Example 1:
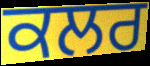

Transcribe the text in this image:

ਕਲਰ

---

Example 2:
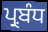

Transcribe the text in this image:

ਪ਼੍ਰਬੰਧ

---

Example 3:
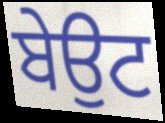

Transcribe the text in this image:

ਬੇਉਟ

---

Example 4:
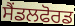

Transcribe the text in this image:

ਸੈਂਡਲਫੋਰਡ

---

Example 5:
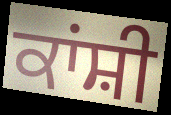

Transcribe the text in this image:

ਕਾਂਸ਼ੀ